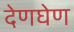
देणघेण